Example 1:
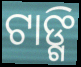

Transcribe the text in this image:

ଟାଙ୍ଗି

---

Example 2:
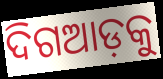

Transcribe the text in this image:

ଦିଗଆଡ଼କୁ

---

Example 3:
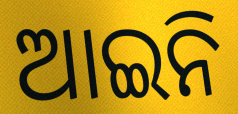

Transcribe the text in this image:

ଆଇନି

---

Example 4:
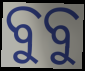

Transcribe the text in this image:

ବୁବୁ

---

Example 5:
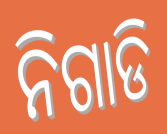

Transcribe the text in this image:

ନିଗାଡି